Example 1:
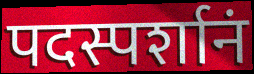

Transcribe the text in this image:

पदस्पर्शानं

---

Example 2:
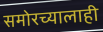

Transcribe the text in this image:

समोरच्यालाही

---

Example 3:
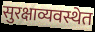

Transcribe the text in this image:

सुरक्षाव्यवस्थेत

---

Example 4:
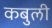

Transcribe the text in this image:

कबुली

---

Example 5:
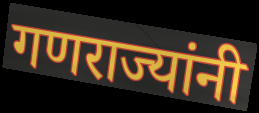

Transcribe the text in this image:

गणराज्यांनी